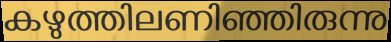
കഴുത്തിലണിഞ്ഞിരുന്നു